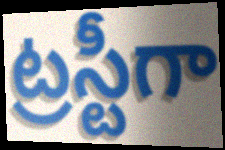
ట్రస్టీగా